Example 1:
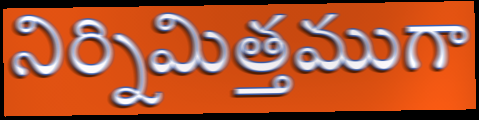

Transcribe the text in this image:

నిర్నిమిత్తముగా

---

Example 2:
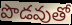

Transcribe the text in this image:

పొడవుతో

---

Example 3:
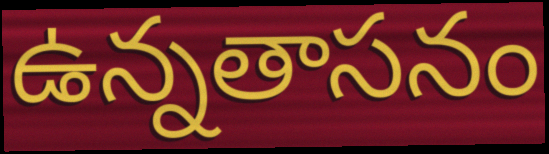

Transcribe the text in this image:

ఉన్నతాసనం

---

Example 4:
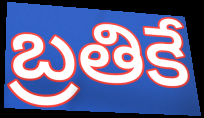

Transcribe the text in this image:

బ్రతికే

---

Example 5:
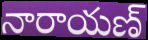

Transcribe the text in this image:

నారాయణ్